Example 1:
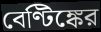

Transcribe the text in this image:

বেণ্টিঙ্কের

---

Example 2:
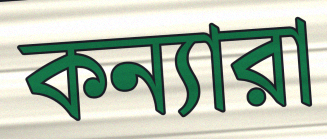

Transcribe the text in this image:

কন্যারা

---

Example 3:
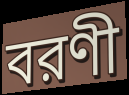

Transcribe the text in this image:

বরণী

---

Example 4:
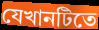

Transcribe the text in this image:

যেখানটিতে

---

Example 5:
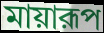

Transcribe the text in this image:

মায়ারূপ